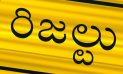
రిజల్టు